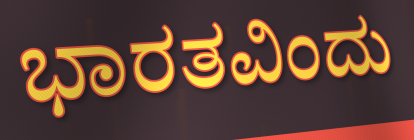
ಭಾರತವಿಂದು